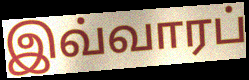
இவ்வாரப்